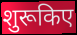
शुरूकिए